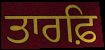
ਤਾਰਫ਼ਿ